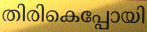
തിരികെപ്പോയി